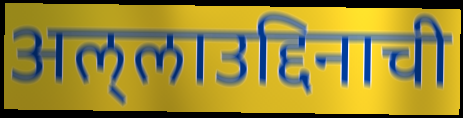
अल्लाउद्दिनाची